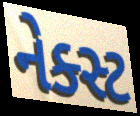
નેક્સ્ટ